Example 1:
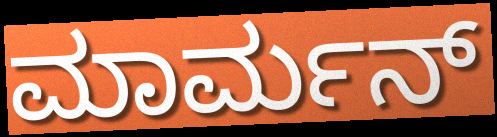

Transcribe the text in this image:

ಮಾರ್ಮನ್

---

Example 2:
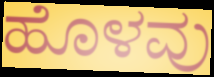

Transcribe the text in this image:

ಹೊಳವು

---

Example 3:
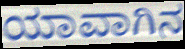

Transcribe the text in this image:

ಯಾವಾಗಿನ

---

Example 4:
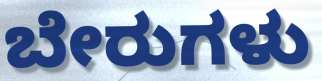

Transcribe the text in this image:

ಬೇರುಗಳು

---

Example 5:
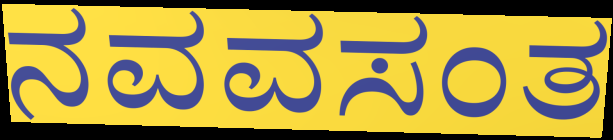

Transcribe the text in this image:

ನವವಸಂತ